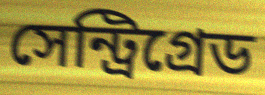
সেন্ট্রিগ্রেড